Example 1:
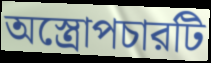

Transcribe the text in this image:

অস্ত্রোপচারটি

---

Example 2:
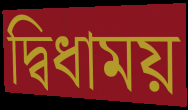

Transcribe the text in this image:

দ্বিধাময়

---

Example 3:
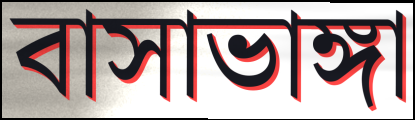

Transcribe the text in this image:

বাসাভাঙ্গা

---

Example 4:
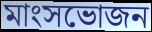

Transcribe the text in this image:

মাংসভোজন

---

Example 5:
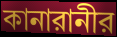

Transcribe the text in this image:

কানারানীর